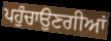
ਪਹੁੰਚਾਉਣਗੀਆਂ